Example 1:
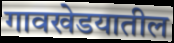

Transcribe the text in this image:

गावखेडयातील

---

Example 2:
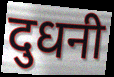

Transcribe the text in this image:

दुधनी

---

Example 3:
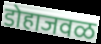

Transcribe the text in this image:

डोहाजवळ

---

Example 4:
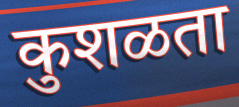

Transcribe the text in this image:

कुशळता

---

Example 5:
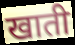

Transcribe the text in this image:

खाती